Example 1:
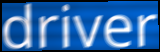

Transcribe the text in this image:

driver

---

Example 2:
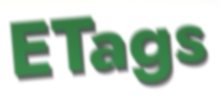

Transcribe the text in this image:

ETags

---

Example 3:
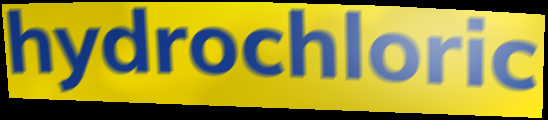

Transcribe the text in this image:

hydrochloric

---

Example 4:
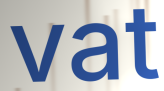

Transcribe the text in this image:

vat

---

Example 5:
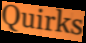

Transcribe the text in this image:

Quirks